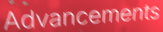
Advancements